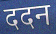
ददन